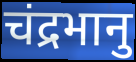
चंद्रभानु